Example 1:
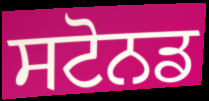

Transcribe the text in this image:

ਸਟੋਨਡ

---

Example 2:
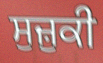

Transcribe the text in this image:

ਸੁਜ਼ੁਕੀ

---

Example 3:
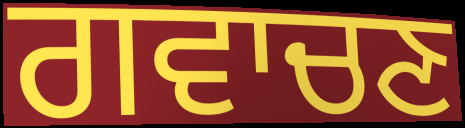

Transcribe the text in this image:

ਗਵਾਚਣ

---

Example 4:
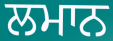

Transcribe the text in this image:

ਲਮਾਨ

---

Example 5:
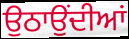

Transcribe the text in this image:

ਉਠਾਉਂਦੀਆਂ